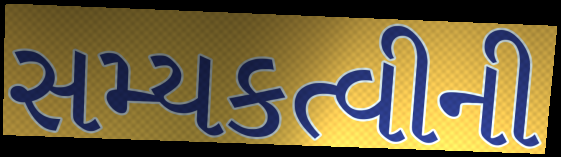
સમ્યકત્વીની